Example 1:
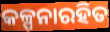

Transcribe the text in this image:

କଳ୍ପନାରହିତ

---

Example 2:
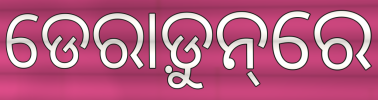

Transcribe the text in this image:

ଡେରାଡ଼ୁନ୍‌ରେ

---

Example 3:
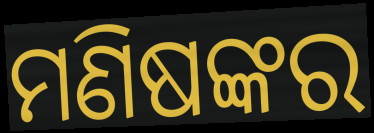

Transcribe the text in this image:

ମଣିଷଙ୍କର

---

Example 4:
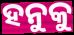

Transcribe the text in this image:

ହନୁକୁ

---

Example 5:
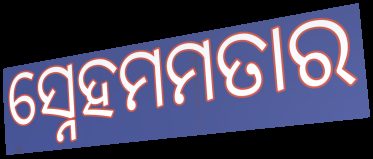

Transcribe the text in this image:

ସ୍ନେହମମତାର